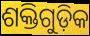
ଶକ୍ତିଗୁଡ଼ିକ